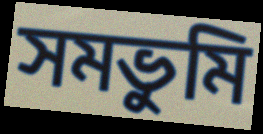
সমভুমি